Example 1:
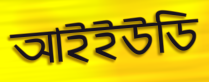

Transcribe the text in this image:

আইইউডি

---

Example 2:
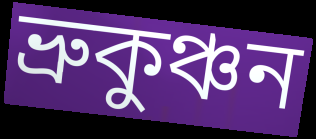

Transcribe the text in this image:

ভ্রুকুঞ্চন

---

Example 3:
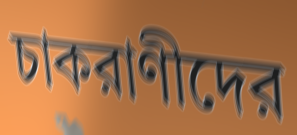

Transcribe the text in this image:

চাকরাণীদের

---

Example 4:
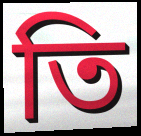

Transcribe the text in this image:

তি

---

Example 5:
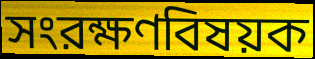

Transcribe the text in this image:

সংরক্ষণবিষয়ক